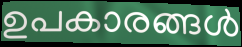
ഉപകാരങ്ങൾ